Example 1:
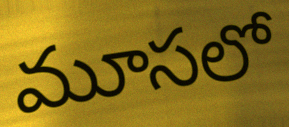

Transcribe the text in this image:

మూసలో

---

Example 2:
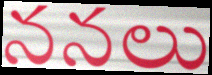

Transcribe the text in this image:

ననలు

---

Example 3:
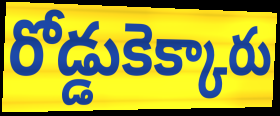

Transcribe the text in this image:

రోడ్డుకెక్కారు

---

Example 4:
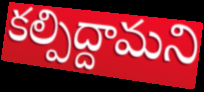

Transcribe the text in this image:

కల్పిద్దామని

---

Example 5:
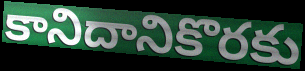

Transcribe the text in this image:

కానిదానికొరకు